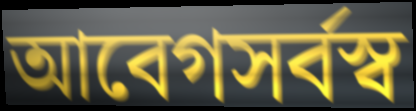
আবেগসর্বস্ব